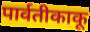
पार्वतीकाकू